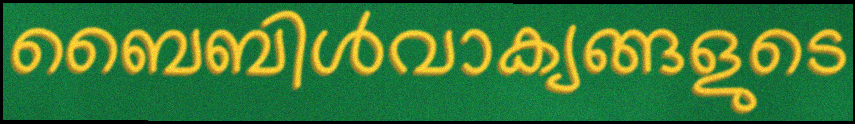
ബൈബിൾവാക്യങ്ങളുടെ